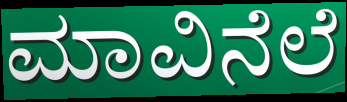
ಮಾವಿನೆಲೆ